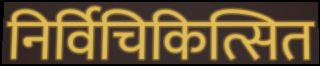
निर्विचिकित्सित